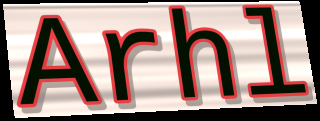
Arhl